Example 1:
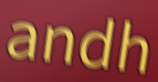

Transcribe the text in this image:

andh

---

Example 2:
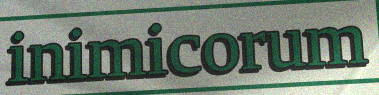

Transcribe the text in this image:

inimicorum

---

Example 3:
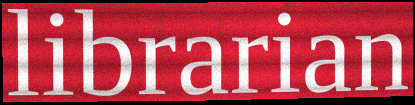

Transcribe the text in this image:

librarian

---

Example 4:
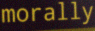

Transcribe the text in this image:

morally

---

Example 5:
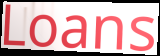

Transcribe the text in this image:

Loans